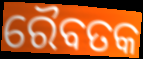
ରୈବତକ